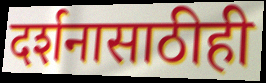
दर्शनासाठीही